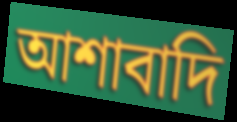
আশাবাদি